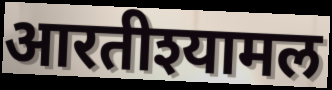
आरतीश्यामल